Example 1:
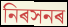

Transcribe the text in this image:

নিৰসনৰ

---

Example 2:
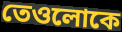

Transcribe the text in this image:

তেওলোকে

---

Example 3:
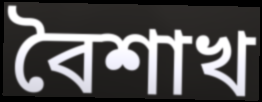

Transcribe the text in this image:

বৈশাখ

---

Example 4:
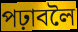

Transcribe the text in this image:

পঢ়াবলৈ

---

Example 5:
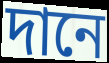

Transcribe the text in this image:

দানে